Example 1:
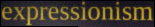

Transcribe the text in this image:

expressionism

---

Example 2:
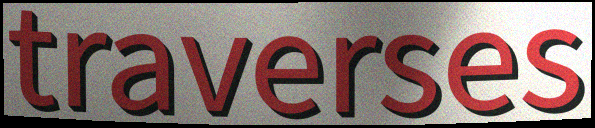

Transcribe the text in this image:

traverses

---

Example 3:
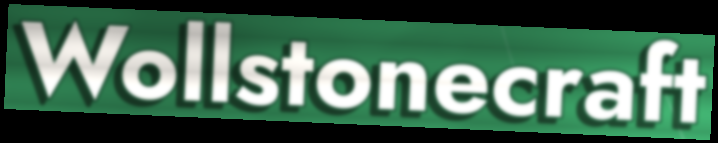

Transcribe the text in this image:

Wollstonecraft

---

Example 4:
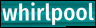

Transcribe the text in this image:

whirlpool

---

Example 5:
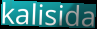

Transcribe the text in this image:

kalisida